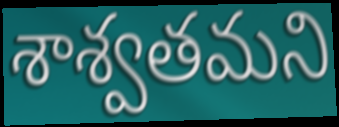
శాశ్వతమని